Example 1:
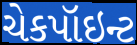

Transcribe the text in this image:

ચેકપૉઇન્ટ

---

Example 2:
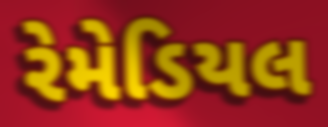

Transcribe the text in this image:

રેમેડિયલ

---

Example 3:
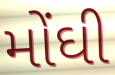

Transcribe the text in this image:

મોંઘી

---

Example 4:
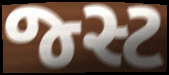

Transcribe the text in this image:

જ્સ્ટ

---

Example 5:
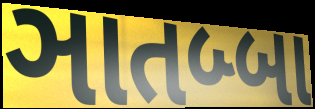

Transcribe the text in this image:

ઞાતબ્બા